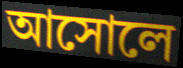
আসোলে